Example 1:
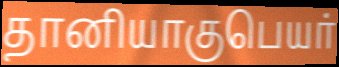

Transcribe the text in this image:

தானியாகுபெயர்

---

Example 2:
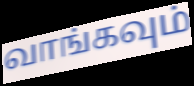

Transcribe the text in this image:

வாங்கவும்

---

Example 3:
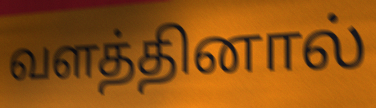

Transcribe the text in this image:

வளத்தினால்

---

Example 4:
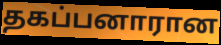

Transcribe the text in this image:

தகப்பனாரான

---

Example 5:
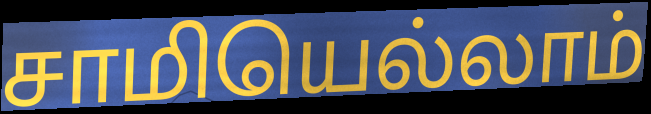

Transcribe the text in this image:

சாமியெல்லாம்